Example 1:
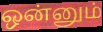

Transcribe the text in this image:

ஒன்னும்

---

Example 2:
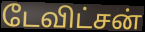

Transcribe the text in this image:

டேவிட்சன்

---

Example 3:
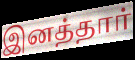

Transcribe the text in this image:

இனத்தார்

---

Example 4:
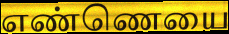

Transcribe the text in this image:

எண்ணெயை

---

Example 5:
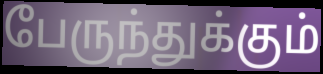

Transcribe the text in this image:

பேருந்துக்கும்